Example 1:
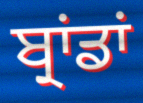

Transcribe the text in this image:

ਬ੍ਰਾਂਡਾਂ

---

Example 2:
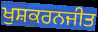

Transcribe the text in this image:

ਖੁਸ਼ਕਰਨਜੀਤ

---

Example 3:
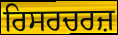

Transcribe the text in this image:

ਰਿਸਰਚਰਜ਼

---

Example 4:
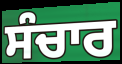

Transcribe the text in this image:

ਸੰਚਾਰ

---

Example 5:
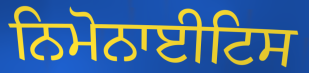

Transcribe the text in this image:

ਨਿਮੋਨਾਈਟਿਸ